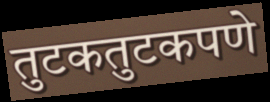
तुटकतुटकपणे